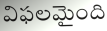
విఫలమైంది